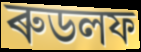
ৰুডলফ